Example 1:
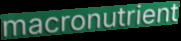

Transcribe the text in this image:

macronutrient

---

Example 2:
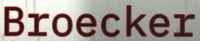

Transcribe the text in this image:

Broecker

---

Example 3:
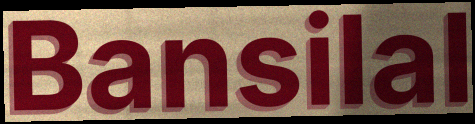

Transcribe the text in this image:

Bansilal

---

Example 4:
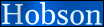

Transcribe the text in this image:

Hobson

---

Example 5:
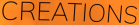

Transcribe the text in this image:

CREATIONS